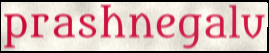
prashnegalu